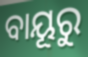
ବାୟୂରୁ